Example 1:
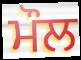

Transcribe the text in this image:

ਮੌਲ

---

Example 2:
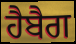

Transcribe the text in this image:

ਹੈਬੈਗ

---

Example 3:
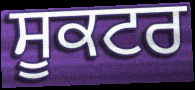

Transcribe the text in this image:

ਸੂਕਟਰ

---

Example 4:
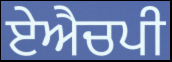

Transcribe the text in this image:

ਏਐਚਪੀ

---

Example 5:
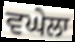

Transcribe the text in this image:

ਵਘੇਲਾ